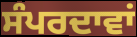
ਸੰਪਰਦਾਵਾਂ